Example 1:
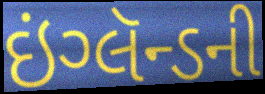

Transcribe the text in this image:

ઇંગ્લૅન્ડની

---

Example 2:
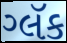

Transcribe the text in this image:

ગ્લૅક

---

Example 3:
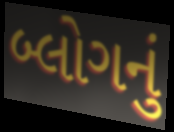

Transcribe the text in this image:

બ્લોગનું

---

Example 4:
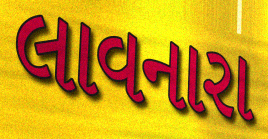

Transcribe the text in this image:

લાવનારા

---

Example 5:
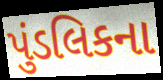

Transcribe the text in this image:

પુંડલિકના